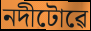
নদীটোৱে